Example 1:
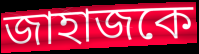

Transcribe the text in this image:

জাহাজকে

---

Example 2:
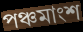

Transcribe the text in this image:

পঞ্চমাংশ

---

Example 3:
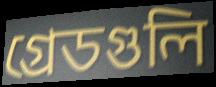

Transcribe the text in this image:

গ্রেডগুলি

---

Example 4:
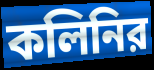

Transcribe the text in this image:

কলিনির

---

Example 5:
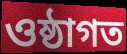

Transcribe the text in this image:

ওষ্ঠাগত